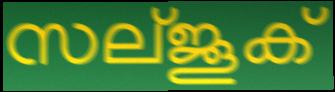
സല്ജൂക്